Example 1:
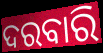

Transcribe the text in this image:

ଦରବାରି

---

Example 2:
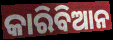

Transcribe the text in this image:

କାରିବିଆନ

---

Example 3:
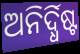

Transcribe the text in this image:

ଅନିର୍ଦ୍ଧିଷ୍ଟ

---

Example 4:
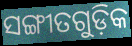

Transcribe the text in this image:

ସଙ୍ଗୀତଗୁଡ଼ିକ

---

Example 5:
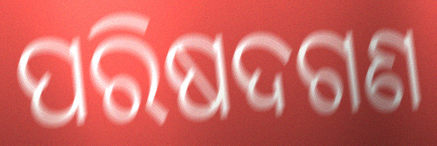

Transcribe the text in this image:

ପରିଷଦଗଣ